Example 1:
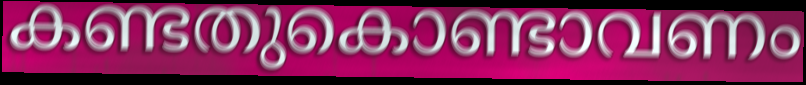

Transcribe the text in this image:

കണ്ടതുകൊണ്ടാവണം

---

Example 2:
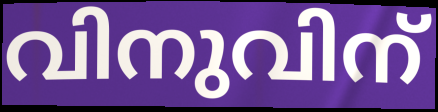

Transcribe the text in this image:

വിനുവിന്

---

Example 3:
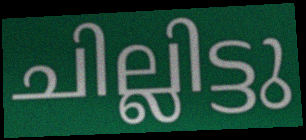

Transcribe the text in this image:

ചില്ലിട്ടു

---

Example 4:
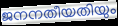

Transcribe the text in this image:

ജനനതീയതിയും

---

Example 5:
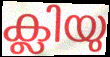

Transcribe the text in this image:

ക്ലിയു